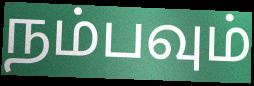
நம்பவும்